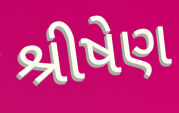
શ્રીષેણ